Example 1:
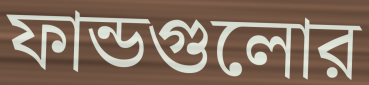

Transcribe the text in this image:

ফান্ডগুলোর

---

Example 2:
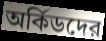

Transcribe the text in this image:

অর্কিডদের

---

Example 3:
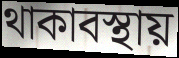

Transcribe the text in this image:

থাকাবস্থায়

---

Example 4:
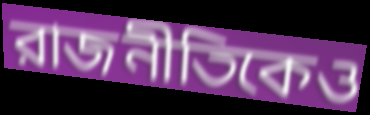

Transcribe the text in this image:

রাজনীতিকেও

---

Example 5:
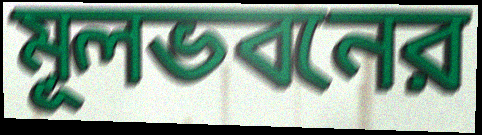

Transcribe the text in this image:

মূলভবনের